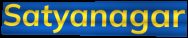
Satyanagar